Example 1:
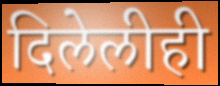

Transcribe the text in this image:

दिलेलीही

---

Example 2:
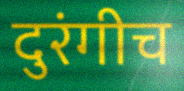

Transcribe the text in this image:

दुरंगीच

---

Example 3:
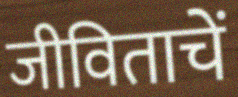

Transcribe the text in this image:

जीविताचें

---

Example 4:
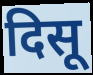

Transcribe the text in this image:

दिसू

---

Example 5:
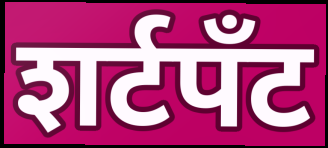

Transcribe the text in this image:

शर्टपॅंट